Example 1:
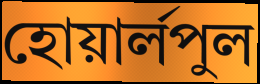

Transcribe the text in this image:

হোয়ার্লপুল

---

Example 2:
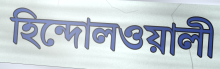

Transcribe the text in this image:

হিন্দোলওয়ালী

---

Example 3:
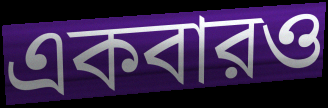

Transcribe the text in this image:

একবারও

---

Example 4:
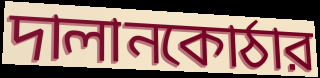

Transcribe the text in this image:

দালানকোঠার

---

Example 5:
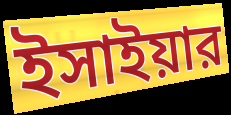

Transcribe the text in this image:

ইসাইয়ার